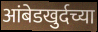
आंबेडखुर्दच्या